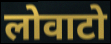
लोवाटो